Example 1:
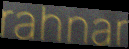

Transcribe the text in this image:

rahnar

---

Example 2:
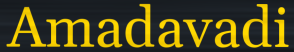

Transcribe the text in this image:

Amadavadi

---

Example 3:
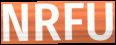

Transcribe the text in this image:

NRFU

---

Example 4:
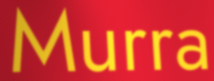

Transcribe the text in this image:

Murra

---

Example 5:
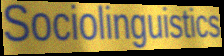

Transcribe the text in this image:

Sociolinguistics